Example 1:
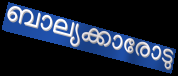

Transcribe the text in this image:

ബാല്യക്കാരോടു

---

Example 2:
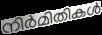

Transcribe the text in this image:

നിർമിതികൾ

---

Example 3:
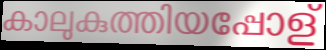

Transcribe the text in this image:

കാലുകുത്തിയപ്പോള്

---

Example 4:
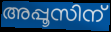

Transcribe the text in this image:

അപ്പൂസിന്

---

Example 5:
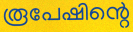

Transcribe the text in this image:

രൂപേഷിന്റെ